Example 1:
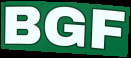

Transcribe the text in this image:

BGF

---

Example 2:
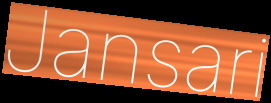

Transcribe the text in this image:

Jansari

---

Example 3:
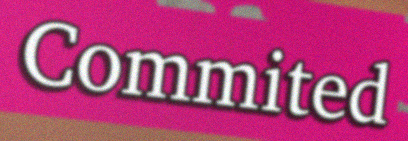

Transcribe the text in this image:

Commited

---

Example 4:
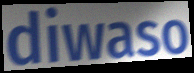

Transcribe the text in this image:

diwaso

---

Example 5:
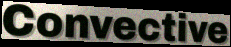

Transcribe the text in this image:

Convective